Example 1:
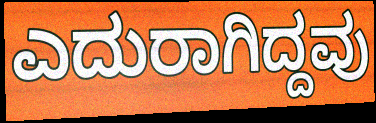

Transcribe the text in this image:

ಎದುರಾಗಿದ್ದವು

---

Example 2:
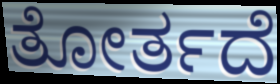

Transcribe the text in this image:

ತೋರ್ತದೆ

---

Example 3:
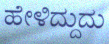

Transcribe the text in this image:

ಹೇಳಿದ್ದುದು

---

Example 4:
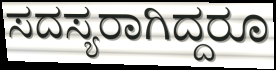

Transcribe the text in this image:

ಸದಸ್ಯರಾಗಿದ್ದರೂ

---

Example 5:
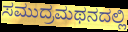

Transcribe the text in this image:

ಸಮುದ್ರಮಥನದಲ್ಲಿ